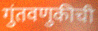
गुंतवणुकीची